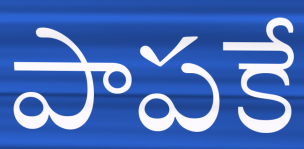
పాపకే